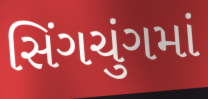
સિંગચુંગમાં